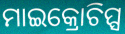
ମାଇକ୍ରୋଚିପ୍ସ